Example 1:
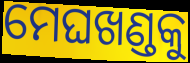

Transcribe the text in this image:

ମେଘଖଣ୍ଡକୁ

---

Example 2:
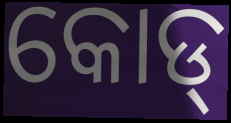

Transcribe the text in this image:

କୋଡ୍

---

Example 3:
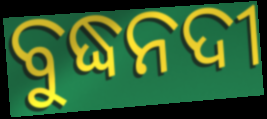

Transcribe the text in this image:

ବୁଦ୍ଧନଦୀ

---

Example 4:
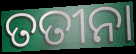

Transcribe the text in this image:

ତତୀନା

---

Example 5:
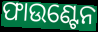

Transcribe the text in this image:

ଫାଉଣ୍ଟେନ